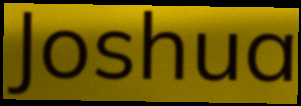
Joshua